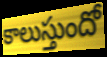
కాలుస్తుందో